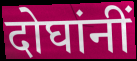
दोघांनीं